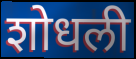
शोधली